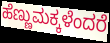
ಹೆಣ್ಣುಮಕ್ಕಳೆಂದರೆ